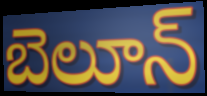
బెలూన్